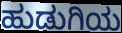
ಹುಡುಗಿಯ